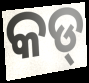
କଡ୍